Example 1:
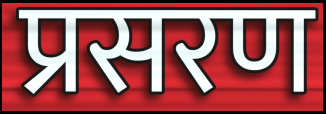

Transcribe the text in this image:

प्रसरण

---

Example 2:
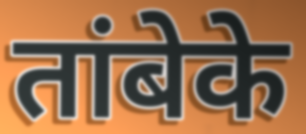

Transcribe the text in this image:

तांबेके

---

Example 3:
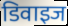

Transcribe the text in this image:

डिवाइज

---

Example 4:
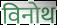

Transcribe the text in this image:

विनोथ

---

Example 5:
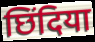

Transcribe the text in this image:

छिंदिया